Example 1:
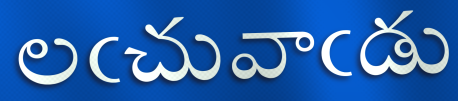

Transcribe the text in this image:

లఁచువాఁడు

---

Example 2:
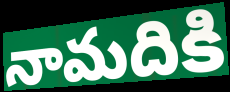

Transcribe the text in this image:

నామదికి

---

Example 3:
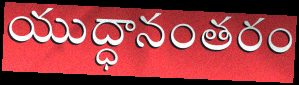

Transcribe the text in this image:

యుద్ధానంతరం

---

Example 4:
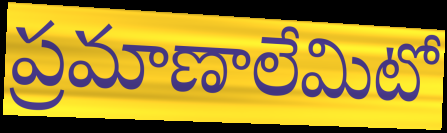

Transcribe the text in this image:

ప్రమాణాలేమిటో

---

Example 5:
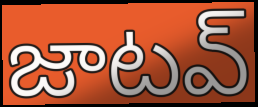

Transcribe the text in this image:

జాటవ్